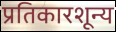
प्रतिकारशून्य